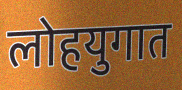
लोहयुगात